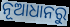
ନୂଆଧାନରୁ